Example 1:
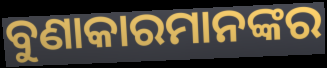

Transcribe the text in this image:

ବୁଣାକାରମାନଙ୍କର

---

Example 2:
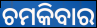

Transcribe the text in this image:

ଚମକିବାର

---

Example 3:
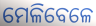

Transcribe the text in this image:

ମେଳିବେଳେ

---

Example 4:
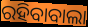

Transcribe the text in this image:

ରହିବାବାଲା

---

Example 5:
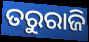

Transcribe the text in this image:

ତରୁରାଜି